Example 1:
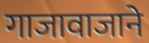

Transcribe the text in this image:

गाजावाजाने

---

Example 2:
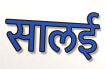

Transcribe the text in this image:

सालई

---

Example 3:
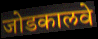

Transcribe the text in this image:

जोडकालवे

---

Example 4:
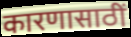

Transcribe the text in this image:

कारणासाठीं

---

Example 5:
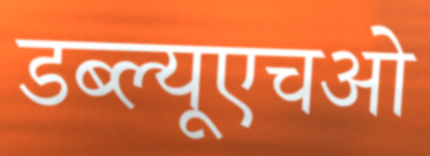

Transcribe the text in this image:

डब्ल्यूएचओ